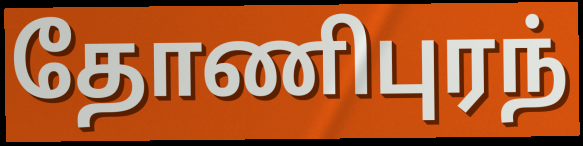
தோணிபுரந்